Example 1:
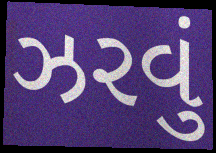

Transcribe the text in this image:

ઝરવું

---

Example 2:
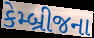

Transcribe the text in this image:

કેમ્બ્રીજના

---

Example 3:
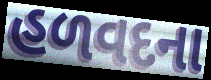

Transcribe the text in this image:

હળવદના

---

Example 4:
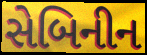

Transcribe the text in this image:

સેબિનીન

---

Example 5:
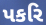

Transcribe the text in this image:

પકરિ